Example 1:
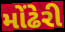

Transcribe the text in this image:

મોંઢેરી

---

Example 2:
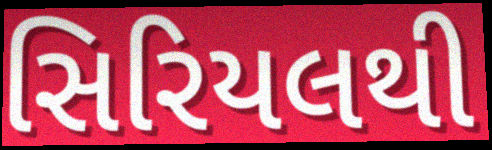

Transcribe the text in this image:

સિરિયલથી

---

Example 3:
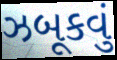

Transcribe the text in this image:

ઝબૂકવું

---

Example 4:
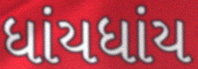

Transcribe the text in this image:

ધાંયધાંય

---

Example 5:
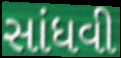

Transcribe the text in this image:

સાંધવી